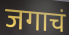
जगाचं